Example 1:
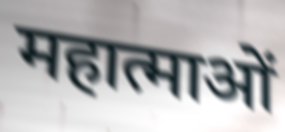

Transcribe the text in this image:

महात्‍माओं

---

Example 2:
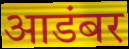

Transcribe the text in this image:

आडंबर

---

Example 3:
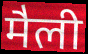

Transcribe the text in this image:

मैली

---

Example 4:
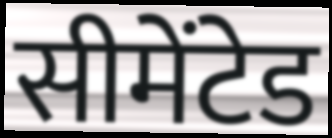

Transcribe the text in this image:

सीमेंटेड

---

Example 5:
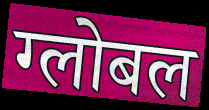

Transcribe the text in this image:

ग्लोबल